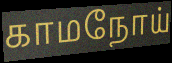
காமநோய்